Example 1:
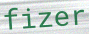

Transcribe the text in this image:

fizer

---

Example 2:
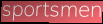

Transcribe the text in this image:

sportsmen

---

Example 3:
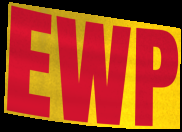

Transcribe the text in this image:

EWP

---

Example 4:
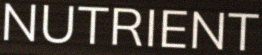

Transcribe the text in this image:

NUTRIENT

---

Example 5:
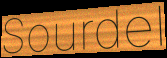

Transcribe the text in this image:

Sourdel